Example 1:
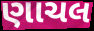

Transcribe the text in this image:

ણાચલ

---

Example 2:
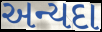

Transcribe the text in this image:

અન્યદા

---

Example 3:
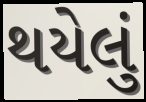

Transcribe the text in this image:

થયેલું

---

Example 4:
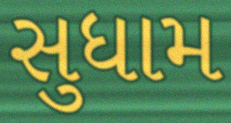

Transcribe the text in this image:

સુધામ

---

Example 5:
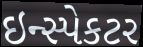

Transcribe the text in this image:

ઇન્સ્પેકટર